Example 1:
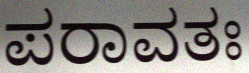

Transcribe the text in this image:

ಪರಾವತಃ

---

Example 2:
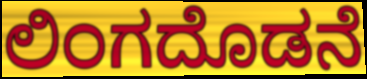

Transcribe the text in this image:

ಲಿಂಗದೊಡನೆ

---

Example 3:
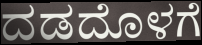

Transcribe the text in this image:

ದಡದೊಳಗೆ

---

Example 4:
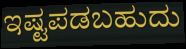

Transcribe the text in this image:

ಇಷ್ಟಪಡಬಹುದು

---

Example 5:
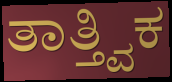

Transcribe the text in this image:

ತಾತ್ತ್ವಿಕ